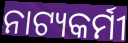
ନାଟ୍ୟକର୍ମୀ